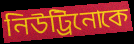
নিউট্রিনোকে